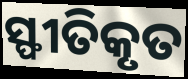
ସ୍ଫୀତିକୃତ